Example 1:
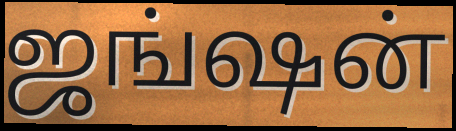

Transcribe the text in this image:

ஜங்ஷன்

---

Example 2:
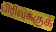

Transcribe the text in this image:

பிரிவுக்குக்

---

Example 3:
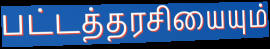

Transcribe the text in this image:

பட்டத்தரசியையும்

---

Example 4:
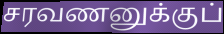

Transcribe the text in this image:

சரவணனுக்குப்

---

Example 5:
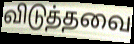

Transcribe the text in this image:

விடுத்தவை